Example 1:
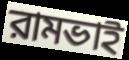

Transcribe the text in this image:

রামভাই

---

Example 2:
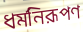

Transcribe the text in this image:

ধর্মনিরূপণ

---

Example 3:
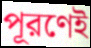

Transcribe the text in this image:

পূরণেই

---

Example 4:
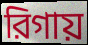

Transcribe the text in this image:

রিগায়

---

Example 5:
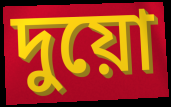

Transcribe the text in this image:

দুয়ো